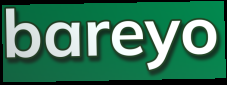
bareyo